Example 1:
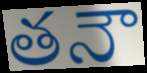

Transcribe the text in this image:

తనౌ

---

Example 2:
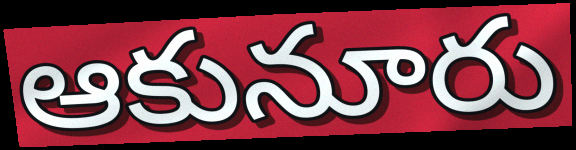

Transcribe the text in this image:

ఆకునూరు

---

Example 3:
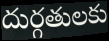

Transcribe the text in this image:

దుర్గతులకు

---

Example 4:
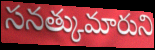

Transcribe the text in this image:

సనత్కుమారుని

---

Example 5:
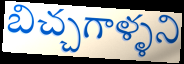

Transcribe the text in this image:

బిచ్చగాళ్ళని